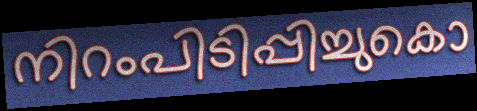
നിറംപിടിപ്പിച്ചുകൊ